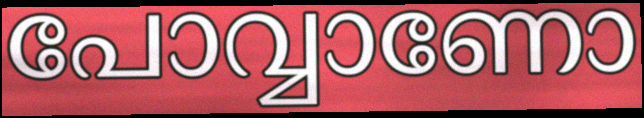
പോവ്വാണോ